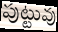
పుట్టువు